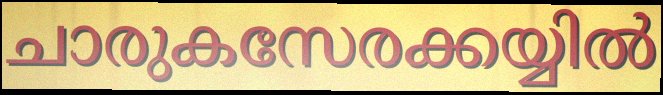
ചാരുകസേരക്കയ്യിൽ